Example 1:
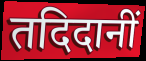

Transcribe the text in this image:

तदिदानीं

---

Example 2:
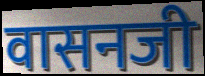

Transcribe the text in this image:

वासनजी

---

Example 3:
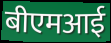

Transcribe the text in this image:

बीएमआई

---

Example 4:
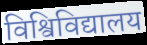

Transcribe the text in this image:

विश्विविद्यालय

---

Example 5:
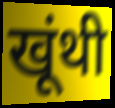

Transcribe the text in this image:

खूंथी